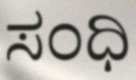
ಸಂಧಿ